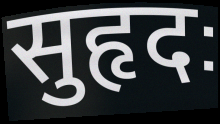
सुहृदः